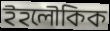
ইহলৌকিক